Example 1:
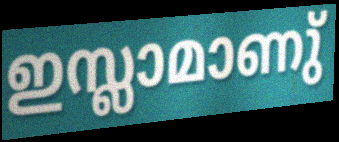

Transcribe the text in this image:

ഇസ്ലാമാണു്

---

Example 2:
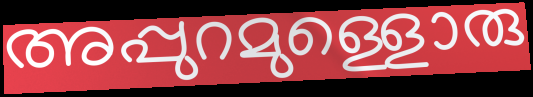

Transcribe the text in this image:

അപ്പുറമുള്ളൊരു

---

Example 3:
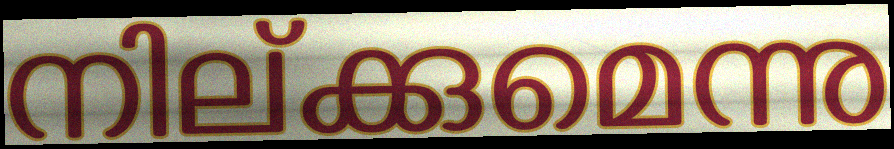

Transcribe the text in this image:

നില്ക്കുമെന്നു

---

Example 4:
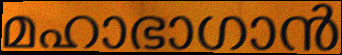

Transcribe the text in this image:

മഹാഭാഗാൻ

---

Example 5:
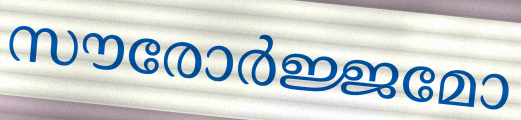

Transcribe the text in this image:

സൗരോർജ്ജമോ